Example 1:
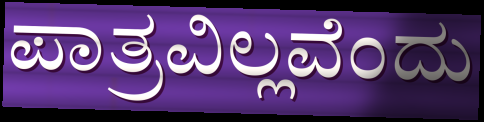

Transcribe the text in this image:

ಪಾತ್ರವಿಲ್ಲವೆಂದು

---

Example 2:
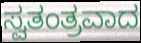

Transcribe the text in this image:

ಸ್ವತಂತ್ರವಾದ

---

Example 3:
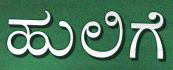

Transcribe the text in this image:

ಹುಲಿಗೆ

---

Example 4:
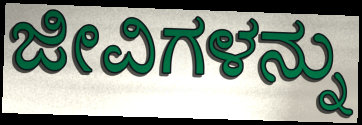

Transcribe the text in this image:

ಜೀವಿಗಳನ್ನು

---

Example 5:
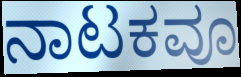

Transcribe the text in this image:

ನಾಟಕವೂ